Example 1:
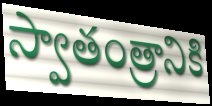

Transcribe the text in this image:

స్వాతంత్రానికి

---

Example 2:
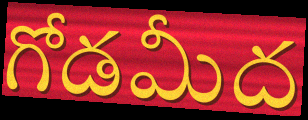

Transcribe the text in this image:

గోడమీద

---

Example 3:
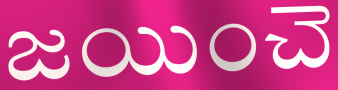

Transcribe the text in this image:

జయించె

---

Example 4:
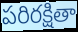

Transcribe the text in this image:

పరిరక్షితా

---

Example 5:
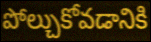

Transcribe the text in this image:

పోల్చుకోవడానికి